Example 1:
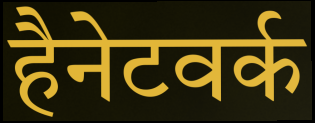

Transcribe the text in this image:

हैनेटवर्क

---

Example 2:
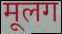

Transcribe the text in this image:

मूलग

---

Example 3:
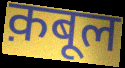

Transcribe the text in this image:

क़बूल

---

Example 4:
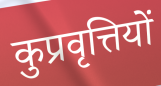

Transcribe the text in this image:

कुप्रवृत्तियों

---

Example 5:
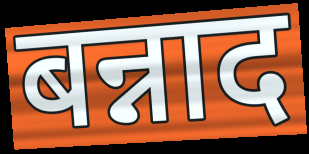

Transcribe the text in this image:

बन्नाद